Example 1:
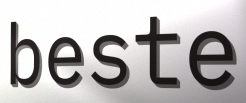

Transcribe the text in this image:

beste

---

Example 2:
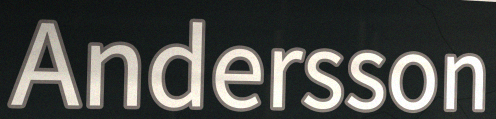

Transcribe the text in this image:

Andersson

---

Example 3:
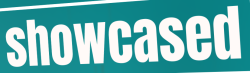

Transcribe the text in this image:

showcased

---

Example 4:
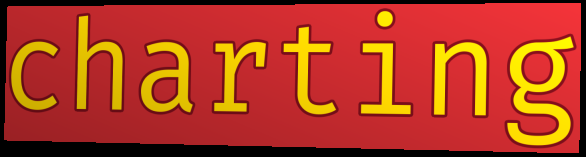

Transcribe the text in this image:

charting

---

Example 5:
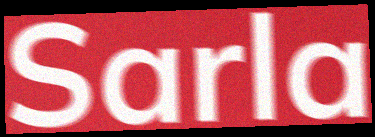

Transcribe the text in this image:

Sarla